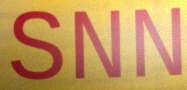
SNN